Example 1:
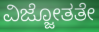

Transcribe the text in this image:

ವಿಜ್ಜೋತತೇ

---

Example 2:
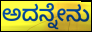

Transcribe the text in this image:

ಅದನ್ನೇನು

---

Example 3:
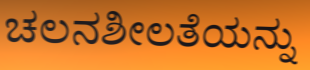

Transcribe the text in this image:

ಚಲನಶೀಲತೆಯನ್ನು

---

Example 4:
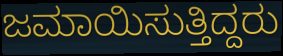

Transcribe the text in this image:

ಜಮಾಯಿಸುತ್ತಿದ್ದರು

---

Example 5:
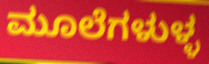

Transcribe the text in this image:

ಮೂಲೆಗಳುಳ್ಳ